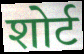
शोर्ट